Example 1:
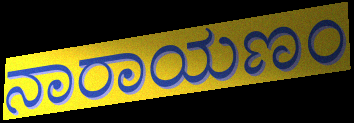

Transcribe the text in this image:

ನಾರಾಯಣಂ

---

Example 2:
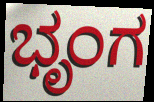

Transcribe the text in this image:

ಭೃಂಗ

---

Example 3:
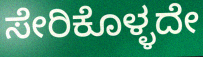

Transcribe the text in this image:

ಸೇರಿಕೊಳ್ಳದೇ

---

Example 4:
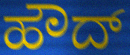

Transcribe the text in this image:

ಹೌದ್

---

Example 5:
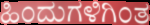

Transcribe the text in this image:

ಹಿಂದುಗಳಿಗಿಂತ